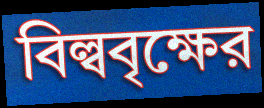
বিল্ববৃক্ষের